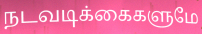
நடவடிக்கைகளுமே